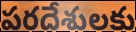
పరదేశులకు